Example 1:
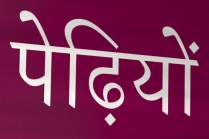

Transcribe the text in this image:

पेढ़ियों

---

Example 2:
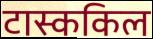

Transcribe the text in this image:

टास्ककिल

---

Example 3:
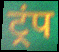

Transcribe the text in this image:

ट्रंप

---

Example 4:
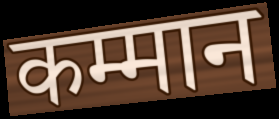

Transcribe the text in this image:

कम्मान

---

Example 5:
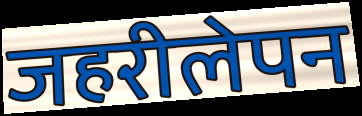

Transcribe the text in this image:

जहरीलेपन